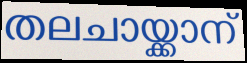
തലചായ്ക്കാന്